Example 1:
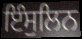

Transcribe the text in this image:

ਇੰਸੁਲਿਨ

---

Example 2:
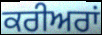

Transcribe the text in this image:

ਕਰੀਅਰਾਂ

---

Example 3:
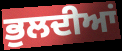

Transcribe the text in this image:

ਭੁਲਦੀਆਂ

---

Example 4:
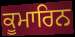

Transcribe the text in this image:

ਕੂਮਾਰਿਨ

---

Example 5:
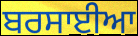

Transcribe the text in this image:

ਬਰਸਾਈਆ